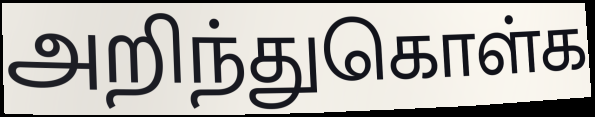
அறிந்துகொள்க